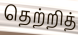
தெற்றித்